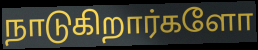
நாடுகிறார்களோ